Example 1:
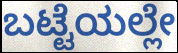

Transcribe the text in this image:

ಬಟ್ಟೆಯಲ್ಲೇ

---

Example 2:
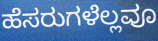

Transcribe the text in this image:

ಹೆಸರುಗಳೆಲ್ಲವೂ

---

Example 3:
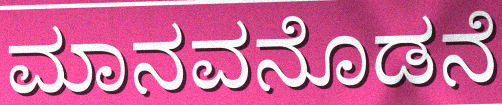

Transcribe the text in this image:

ಮಾನವನೊಡನೆ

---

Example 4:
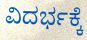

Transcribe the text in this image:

ವಿದರ್ಭಕ್ಕೆ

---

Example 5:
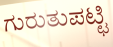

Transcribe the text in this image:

ಗುರುತುಪಟ್ಟಿ